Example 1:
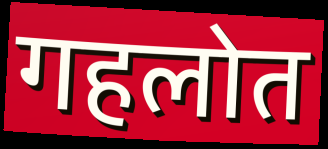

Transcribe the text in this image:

गहलोत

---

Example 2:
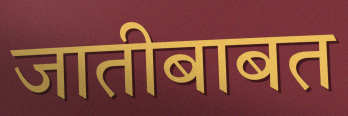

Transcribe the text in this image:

जातीबाबत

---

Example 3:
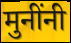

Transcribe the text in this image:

मुनींनी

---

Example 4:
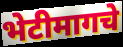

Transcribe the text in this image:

भेटीमागचे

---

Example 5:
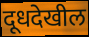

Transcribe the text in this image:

दूधदेखील